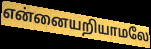
என்னையறியாமலே